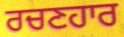
ਰਚਣਹਾਰ